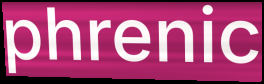
phrenic